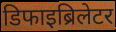
डिफाइब्रिलेटर